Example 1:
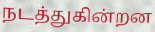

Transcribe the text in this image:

நடத்துகின்றன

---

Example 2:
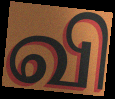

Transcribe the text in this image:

வி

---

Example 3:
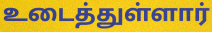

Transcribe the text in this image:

உடைத்துள்ளார்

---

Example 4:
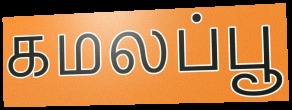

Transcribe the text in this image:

கமலப்பூ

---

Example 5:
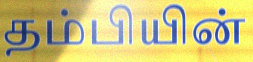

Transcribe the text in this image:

தம்பியின்